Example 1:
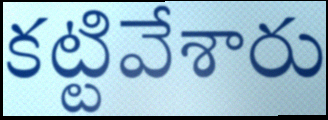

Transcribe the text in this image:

కట్టివేశారు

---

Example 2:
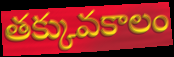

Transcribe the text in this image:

తక్కువకాలం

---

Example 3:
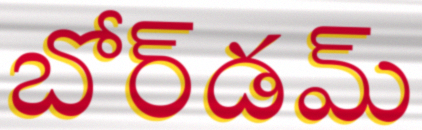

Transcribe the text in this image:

బోర్‌డమ్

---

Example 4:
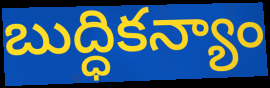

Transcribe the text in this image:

బుద్ధికన్యాం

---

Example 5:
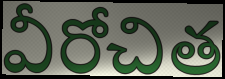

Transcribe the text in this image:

వీరోచిత